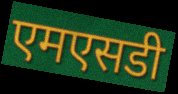
एमएसडी